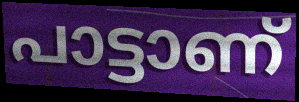
പാട്ടാണ്